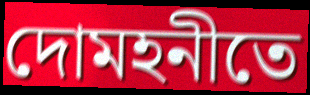
দোমহনীতে